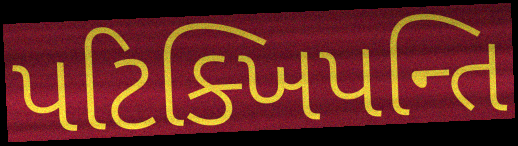
પટિક્ખિપન્તિ